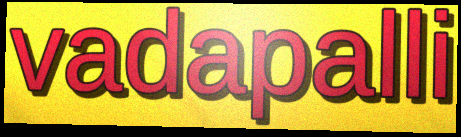
vadapalli